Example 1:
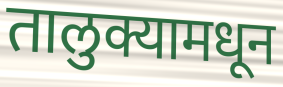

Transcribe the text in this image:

तालुक्यामधून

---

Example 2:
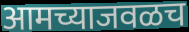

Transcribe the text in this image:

आमच्याजवळच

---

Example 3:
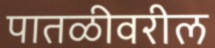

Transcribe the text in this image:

पातळीवरील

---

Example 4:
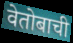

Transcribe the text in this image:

वेतोबाची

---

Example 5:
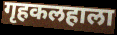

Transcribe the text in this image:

गृहकलहाला